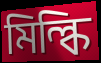
মিল্কি